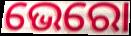
ଭେରୋ